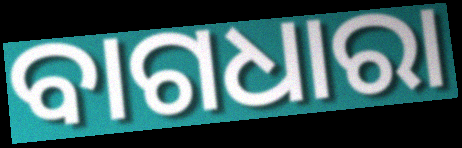
ବାଗଧାରା